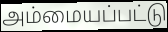
அம்மையப்பட்டு